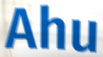
Ahu